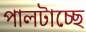
পালটাচ্ছে